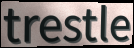
trestle